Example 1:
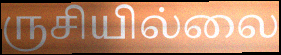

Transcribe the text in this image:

ருசியில்லை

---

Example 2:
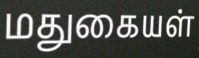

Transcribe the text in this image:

மதுகையள்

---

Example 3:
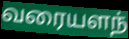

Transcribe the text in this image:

வரையளந்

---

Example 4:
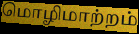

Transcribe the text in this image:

மொழிமாற்றம்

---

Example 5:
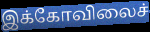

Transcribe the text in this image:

இக்கோவிலைச்